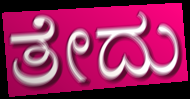
ತೇದು